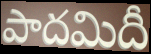
పాదమిదీ